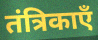
तंत्रिकाएँ